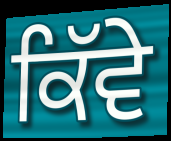
ਕਿੱਵੇ